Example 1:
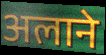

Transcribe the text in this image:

अलाने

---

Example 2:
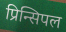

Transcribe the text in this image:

प्रिन्सिपल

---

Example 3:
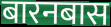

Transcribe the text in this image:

बारनबास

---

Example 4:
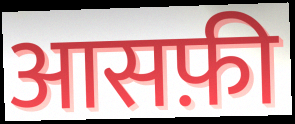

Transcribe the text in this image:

आसफ़ी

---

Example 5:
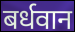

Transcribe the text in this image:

बर्धवान